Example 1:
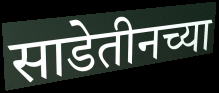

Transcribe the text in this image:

साडेतीनच्या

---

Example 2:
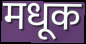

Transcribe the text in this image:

मधूक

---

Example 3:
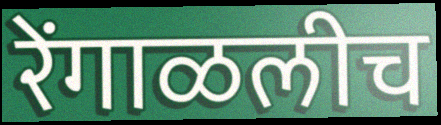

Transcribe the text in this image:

रेंगाळलीच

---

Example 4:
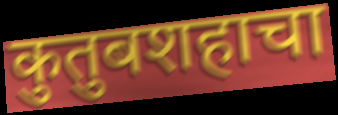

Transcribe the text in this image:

कुतुबशहाचा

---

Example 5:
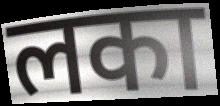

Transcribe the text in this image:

लका